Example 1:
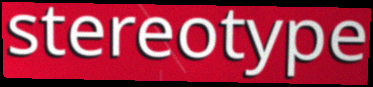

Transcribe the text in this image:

stereotype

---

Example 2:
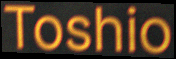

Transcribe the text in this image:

Toshio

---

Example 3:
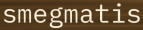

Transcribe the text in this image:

smegmatis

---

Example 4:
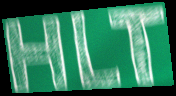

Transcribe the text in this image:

HLT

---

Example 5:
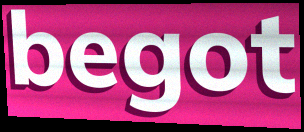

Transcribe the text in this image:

begot